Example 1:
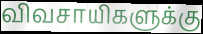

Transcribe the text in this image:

விவசாயிகளுக்கு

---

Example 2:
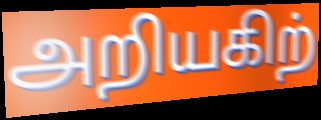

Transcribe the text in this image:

அறியகிற்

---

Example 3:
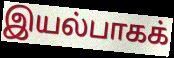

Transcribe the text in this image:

இயல்பாகக்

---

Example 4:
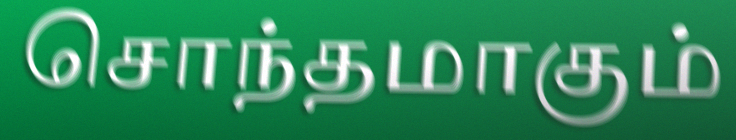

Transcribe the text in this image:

சொந்தமாகும்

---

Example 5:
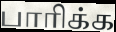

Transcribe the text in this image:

பாரிக்க